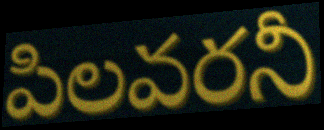
పిలవరనీ